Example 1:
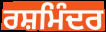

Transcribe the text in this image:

ਰਸ਼ਮਿੰਦਰ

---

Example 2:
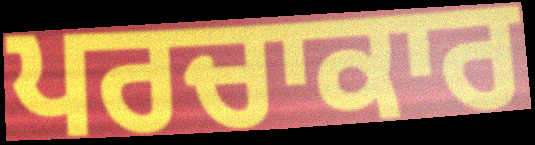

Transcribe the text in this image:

ਪਰਚਾਕਾਰ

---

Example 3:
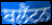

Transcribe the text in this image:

ਬਲੈਂਟਨ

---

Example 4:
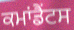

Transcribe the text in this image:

ਕਮਾਂਡੈਂਟਸ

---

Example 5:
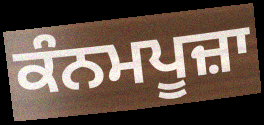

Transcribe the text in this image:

ਕੰਨਮਪੂਜ਼ਾ